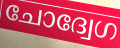
ചോദ്വേഗ